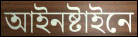
আইনষ্টাইনে